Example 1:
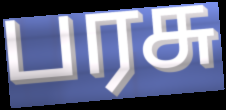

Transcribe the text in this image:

பரசு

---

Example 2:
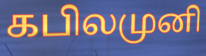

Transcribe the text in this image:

கபிலமுனி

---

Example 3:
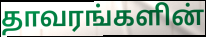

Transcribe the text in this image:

தாவரங்களின்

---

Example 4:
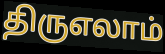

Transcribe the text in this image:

திருஎலாம்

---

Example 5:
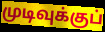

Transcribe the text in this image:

முடிவுக்குப்